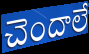
చెందాలే